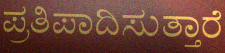
ಪ್ರತಿಪಾದಿಸುತ್ತಾರೆ